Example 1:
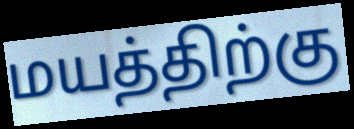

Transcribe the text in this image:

மயத்திற்கு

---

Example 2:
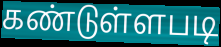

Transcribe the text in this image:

கண்டுள்ளபடி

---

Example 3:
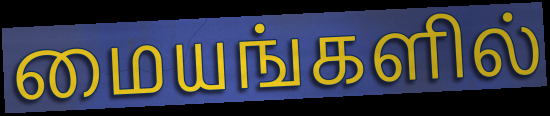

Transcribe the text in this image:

மையங்களில்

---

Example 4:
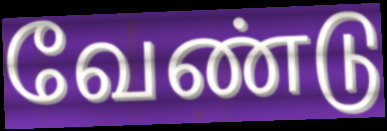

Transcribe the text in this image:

வேண்டு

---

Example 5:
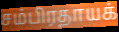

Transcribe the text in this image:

சம்பிரதாயக்